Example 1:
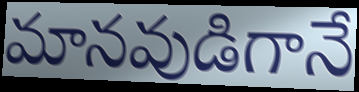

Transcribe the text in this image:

మానవుడిగానే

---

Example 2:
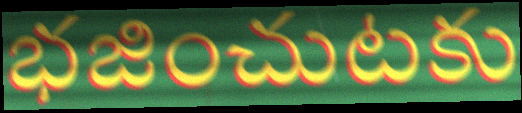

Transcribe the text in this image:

భజించుటకు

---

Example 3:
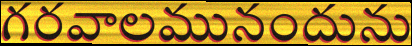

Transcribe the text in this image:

గరవాలమునందును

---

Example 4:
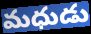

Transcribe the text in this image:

మధుడు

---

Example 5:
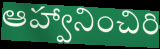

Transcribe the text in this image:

ఆహ్వానించిరి